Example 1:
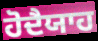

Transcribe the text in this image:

ਹੋਦੈਯਾਹ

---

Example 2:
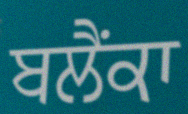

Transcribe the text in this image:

ਬਲੈਂਕਾ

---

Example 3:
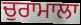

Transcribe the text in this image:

ਚੁਰਾਮਾਲਾ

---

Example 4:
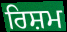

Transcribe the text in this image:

ਰਿਸ਼ਮ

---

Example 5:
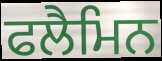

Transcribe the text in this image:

ਫਲੈਮਿਨ